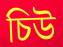
চিউ